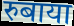
रुबाया